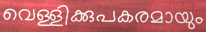
വെള്ളിക്കുപകരമായും